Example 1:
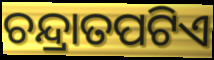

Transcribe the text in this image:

ଚନ୍ଦ୍ରାତପଟିଏ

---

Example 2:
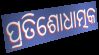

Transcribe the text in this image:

ପ୍ରତିଶୋଧାତ୍ମକ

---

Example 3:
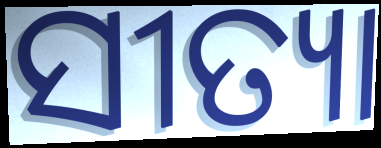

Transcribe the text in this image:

ସୀତ୍ୟା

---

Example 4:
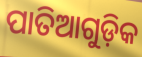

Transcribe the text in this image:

ପାତିଆଗୁଡ଼ିକ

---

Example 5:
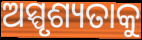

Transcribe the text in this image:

ଅସ୍ପୃଶ୍ୟତାକୁ